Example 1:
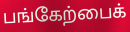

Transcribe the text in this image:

பங்கேற்பைக்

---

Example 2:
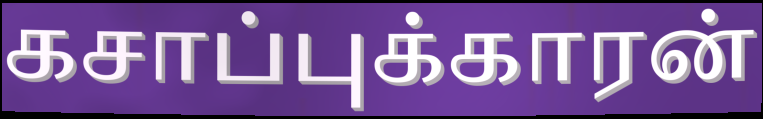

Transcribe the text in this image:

கசாப்புக்காரன்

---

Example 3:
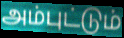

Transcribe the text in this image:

அம்புட்டும்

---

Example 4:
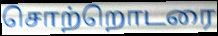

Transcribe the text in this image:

சொற்றொடரை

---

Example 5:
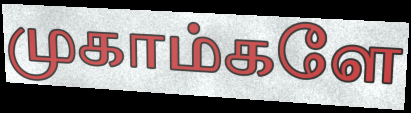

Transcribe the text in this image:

முகாம்களே